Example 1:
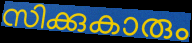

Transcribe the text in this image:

സിക്കുകാരും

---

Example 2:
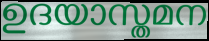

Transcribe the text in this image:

ഉദയാസ്തമന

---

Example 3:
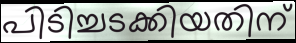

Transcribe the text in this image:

പിടിച്ചടക്കിയതിന്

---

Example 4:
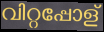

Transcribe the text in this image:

വിറ്റപ്പോള്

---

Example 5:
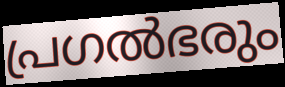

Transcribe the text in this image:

പ്രഗൽഭരും